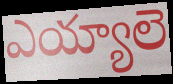
ఎయ్యాలె